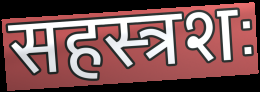
सहस्त्रशः